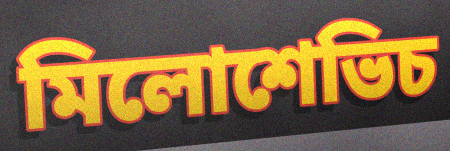
মিলোশেভিচ